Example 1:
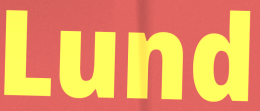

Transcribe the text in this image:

Lund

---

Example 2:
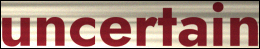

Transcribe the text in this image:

uncertain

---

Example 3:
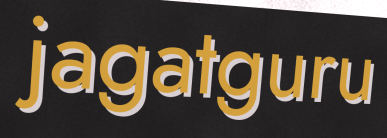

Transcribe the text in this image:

jagatguru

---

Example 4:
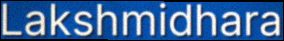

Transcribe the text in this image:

Lakshmidhara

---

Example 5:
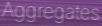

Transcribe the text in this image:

Aggregates